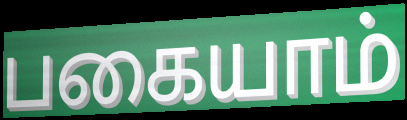
பகையாம்